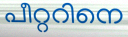
പീറ്ററിനെ